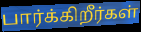
பார்க்கிறீர்கள்